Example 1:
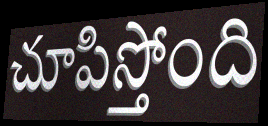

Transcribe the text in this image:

చూపిస్తోంది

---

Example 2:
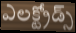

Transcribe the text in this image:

ఎలక్ట్రోడ్స్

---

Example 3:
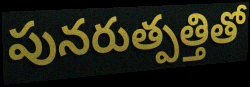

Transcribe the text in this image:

పునరుత్పత్తితో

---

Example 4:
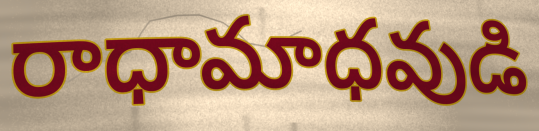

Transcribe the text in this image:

రాధామాధవుడి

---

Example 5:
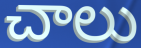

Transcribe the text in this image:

చాలు